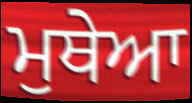
ਮੁਥੇਆ